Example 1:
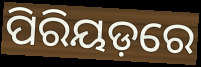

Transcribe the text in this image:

ପିରିୟଡ଼ରେ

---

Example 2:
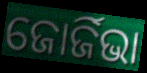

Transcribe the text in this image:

ଜୋର୍ଜିଭା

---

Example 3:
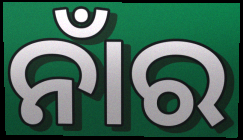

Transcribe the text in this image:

ନାଁର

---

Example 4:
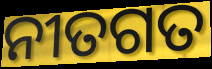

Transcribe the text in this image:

ନୀତଗତ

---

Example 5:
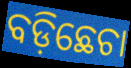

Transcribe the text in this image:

ବଡ଼ିଛେଚା